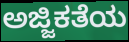
ಅಜ್ಜಿಕತೆಯ